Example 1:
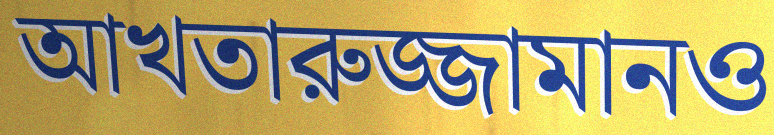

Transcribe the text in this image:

আখতারুজ্জামানও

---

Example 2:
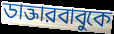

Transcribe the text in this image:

ডাক্তারবাবুকে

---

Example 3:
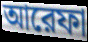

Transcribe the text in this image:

আরেফা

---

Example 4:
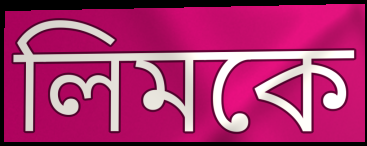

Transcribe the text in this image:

লিমকে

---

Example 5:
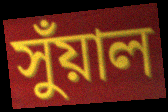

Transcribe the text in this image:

সুঁয়াল